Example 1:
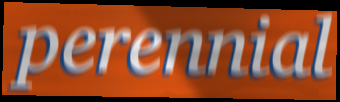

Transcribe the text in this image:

perennial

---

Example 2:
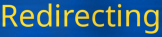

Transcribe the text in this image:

Redirecting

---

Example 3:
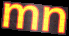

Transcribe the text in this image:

mn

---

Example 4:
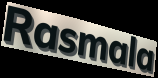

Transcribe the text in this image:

Rasmala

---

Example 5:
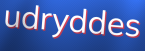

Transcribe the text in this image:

udryddes